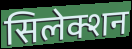
सिलेक्शन